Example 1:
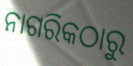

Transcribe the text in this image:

ନାଗରିକଠାରୁ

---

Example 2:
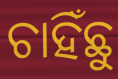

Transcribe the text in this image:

ଚାହିଁଛୁ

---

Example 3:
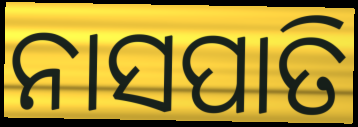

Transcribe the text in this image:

ନାସପାତି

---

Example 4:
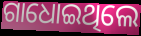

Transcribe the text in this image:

ଗାଧୋଇଥିଲେ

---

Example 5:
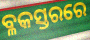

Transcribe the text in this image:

ବ୍ଳକସ୍ତରରେ